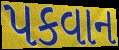
પકવાન